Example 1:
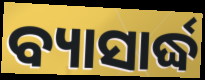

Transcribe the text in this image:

ବ୍ୟାସାର୍ଦ୍ଧ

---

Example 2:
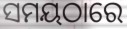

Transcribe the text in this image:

ସମୟଠାରେ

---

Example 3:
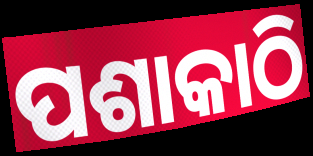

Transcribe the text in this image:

ପଶାକାଠି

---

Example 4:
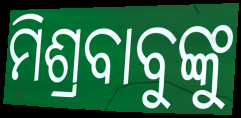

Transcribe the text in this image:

ମିଶ୍ରବାବୁଙ୍କୁ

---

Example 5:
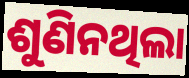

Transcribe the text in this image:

ଶୁଣିନଥିଲା